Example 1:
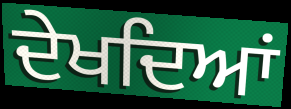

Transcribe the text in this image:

ਦੇਖਦਿਆਂ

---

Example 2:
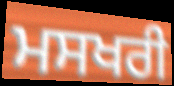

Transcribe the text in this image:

ਮਸਖਰੀ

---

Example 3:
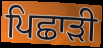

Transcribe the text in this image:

ਪਿਛਾੜੀ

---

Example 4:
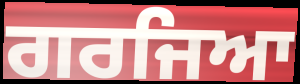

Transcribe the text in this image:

ਗਰਜਿਆ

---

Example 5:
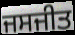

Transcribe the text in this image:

ਜਸਜੀਤ